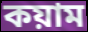
কয়াম